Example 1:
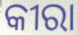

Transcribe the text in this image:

କୀରା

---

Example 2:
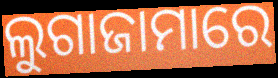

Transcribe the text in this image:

ଲୁଗାଜାମାରେ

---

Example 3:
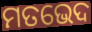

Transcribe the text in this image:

ମତଭେଦ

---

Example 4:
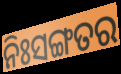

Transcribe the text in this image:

ନିଃସଙ୍ଗତର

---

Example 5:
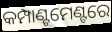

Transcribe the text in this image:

କମ୍ପାଣ୍ଟମେଣ୍ଟରେ